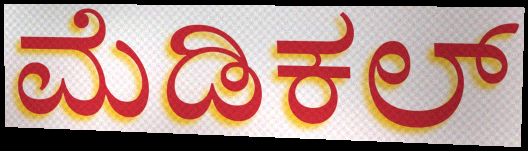
ಮೆಡಿಕಲ್